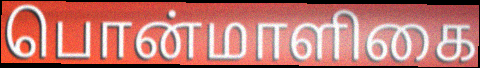
பொன்மாளிகை